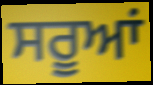
ਸਰੂਆਂ